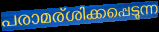
പരാമര്ശിക്കപ്പെടുന്ന